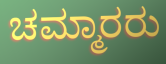
ಚಮ್ಮಾರರು